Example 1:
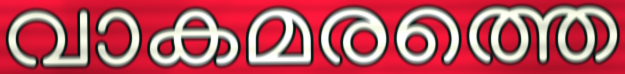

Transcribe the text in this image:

വാകമരത്തെ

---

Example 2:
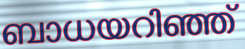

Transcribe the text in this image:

ബാധയറിഞ്ഞ്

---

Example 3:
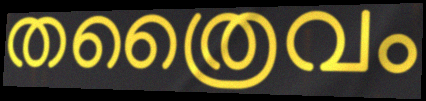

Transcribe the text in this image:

തത്രൈവം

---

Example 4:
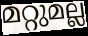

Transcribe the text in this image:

മറ്റുമല്ല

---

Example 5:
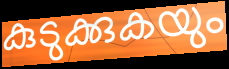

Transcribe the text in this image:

കുടുക്കുകയും